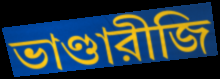
ভাণ্ডারীজি